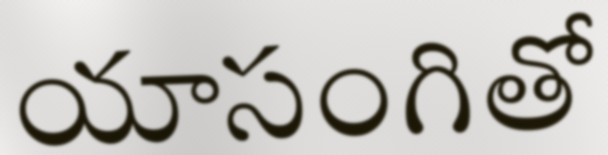
యాసంగితో